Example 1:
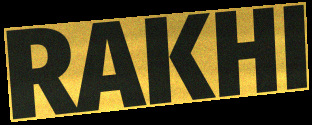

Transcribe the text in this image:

RAKHI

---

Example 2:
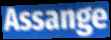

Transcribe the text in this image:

Assange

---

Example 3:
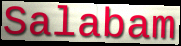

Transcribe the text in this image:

Salabam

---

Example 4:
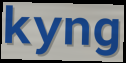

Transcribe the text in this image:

kyng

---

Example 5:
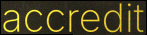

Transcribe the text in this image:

accredit